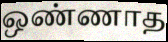
ஒண்ணாத